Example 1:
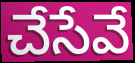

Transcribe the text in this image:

చేసేవే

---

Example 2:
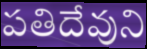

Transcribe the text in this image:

పతిదేవుని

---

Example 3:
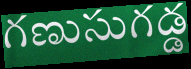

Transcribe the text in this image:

గణుసుగడ్డ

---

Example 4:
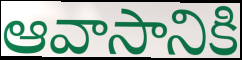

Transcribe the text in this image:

ఆవాసానికి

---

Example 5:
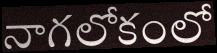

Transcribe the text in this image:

నాగలోకంలో